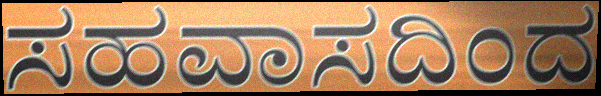
ಸಹವಾಸದಿಂದ